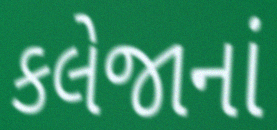
કલેજાનાં